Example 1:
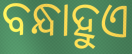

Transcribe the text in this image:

ବନ୍ଧାହୁଏ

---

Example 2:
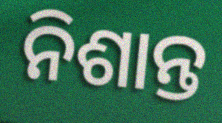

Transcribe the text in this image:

ନିଶାନ୍ତ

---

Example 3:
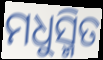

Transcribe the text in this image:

ମଧୁସ୍ମିତ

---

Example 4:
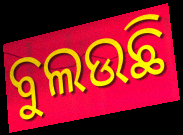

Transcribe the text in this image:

ବୁଲଉଛି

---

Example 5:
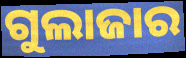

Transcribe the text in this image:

ଗୁଲାଜାର